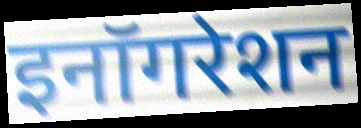
इनॉगरेशन